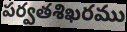
పర్వతశిఖరము